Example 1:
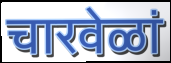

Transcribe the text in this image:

चारवेळां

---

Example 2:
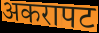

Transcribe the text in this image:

अकरापट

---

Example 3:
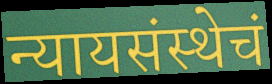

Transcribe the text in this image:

न्यायसंस्थेचं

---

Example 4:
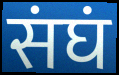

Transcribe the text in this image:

संघं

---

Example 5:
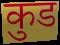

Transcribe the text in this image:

कुड